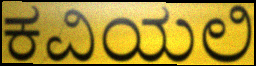
ಕವಿಯಲಿ